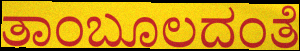
ತಾಂಬೂಲದಂತೆ